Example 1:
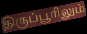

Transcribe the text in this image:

திருப்பூரிலும்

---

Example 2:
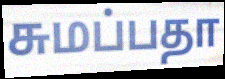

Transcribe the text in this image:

சுமப்பதா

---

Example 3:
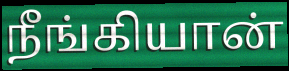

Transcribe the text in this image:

நீங்கியான்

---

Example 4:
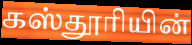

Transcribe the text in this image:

கஸ்தூரியின்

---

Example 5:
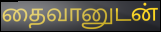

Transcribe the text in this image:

தைவானுடன்